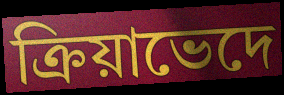
ক্রিয়াভেদে